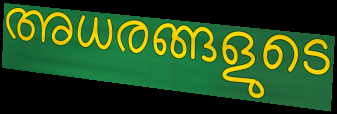
അധരങ്ങളുടെ